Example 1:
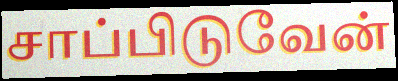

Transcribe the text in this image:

சாப்பிடுவேன்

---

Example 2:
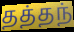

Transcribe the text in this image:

தத்தந்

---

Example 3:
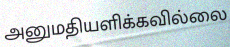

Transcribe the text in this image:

அனுமதியளிக்கவில்லை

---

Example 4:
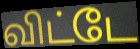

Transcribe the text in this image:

விட்டே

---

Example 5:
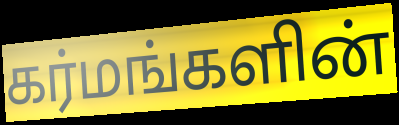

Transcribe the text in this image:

கர்மங்களின்